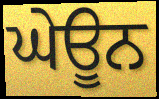
ਘੇਊਨ